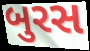
બુરસ